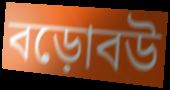
বড়োবউ